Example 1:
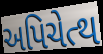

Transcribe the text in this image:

અપિચેત્થ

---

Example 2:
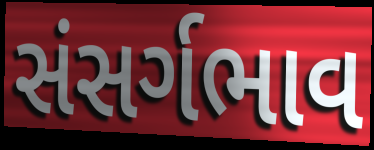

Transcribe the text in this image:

સંસર્ગભાવ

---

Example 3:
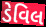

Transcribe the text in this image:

ડેવિલ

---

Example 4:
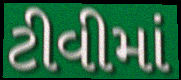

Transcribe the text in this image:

ટીવીમાં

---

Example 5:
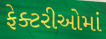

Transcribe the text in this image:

ફેક્ટરીઓમાં